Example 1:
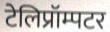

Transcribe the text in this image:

टेलिप्रॉम्पटर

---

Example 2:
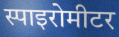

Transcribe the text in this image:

स्पाइरोमीटर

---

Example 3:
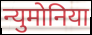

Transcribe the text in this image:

न्युमोनिया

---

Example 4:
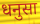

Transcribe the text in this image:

धनुसा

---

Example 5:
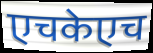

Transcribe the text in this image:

एचकेएच